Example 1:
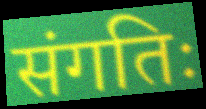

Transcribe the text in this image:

संगतिः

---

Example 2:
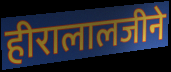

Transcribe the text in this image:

हीरालालजीने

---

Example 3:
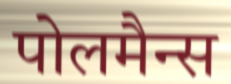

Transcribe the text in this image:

पोलमैन्स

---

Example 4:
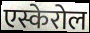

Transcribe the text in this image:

एस्केरोल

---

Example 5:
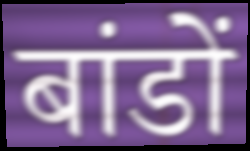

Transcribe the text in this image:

बांडों